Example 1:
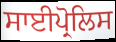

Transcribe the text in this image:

ਸਾਈਪ੍ਰੋਲਿਸ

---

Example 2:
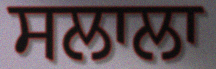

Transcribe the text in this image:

ਸਲਾਲਾ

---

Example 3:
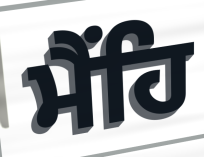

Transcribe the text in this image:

ਮੈਂਹਿ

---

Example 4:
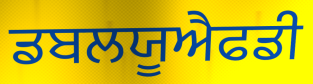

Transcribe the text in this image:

ਡਬਲਯੂਐਫਡੀ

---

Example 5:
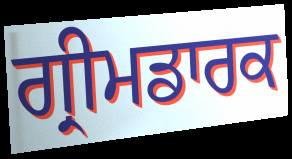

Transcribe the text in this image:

ਗ੍ਰੀਮਡਾਰਕ